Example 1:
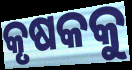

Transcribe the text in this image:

କୃଷକକୁ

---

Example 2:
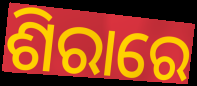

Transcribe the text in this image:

ଶିରାରେ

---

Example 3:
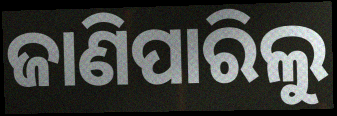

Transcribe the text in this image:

ଜାଣିପାରିଲୁ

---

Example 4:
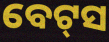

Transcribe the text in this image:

ବେଟ୍‌ସ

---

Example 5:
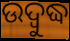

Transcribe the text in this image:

ଉଦ୍ୱୁଦ୍ଧ